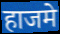
हाजमे